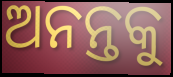
ଅନନ୍ତକୁ